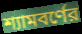
শ্যামবর্ণের